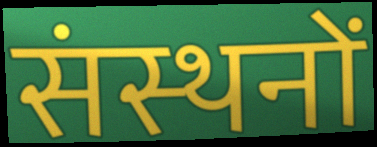
संस्थनों